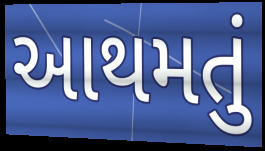
આથમતું